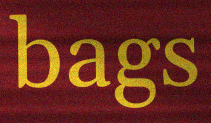
bags